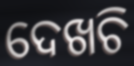
ଦେଖଚି